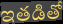
ఇతడితో